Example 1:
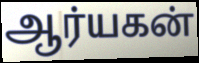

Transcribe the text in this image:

ஆர்யகன்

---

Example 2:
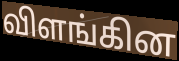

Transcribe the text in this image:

விளங்கின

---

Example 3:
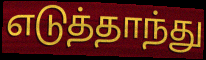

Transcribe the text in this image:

எடுத்தாந்து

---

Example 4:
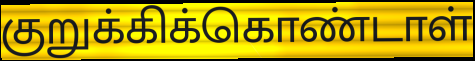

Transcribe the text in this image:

குறுக்கிக்கொண்டாள்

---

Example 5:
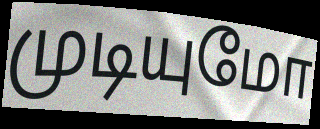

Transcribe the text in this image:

முடியுமோ